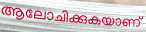
ആലോചിക്കുകയാണ്